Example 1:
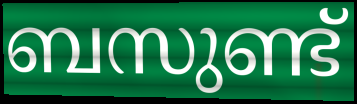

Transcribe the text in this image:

ബസുണ്ട്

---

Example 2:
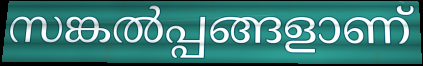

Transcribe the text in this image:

സങ്കൽപ്പങ്ങളാണ്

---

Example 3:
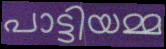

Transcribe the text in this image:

പാട്ടിയമ്മ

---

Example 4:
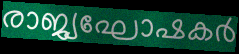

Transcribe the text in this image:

രാജ്യഘോഷകർ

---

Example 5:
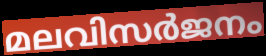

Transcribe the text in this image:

മലവിസർജനം